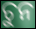
ଚୁନ